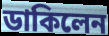
ডাকিলেন